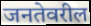
जनतेवरील